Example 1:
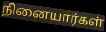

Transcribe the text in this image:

நினையார்கள்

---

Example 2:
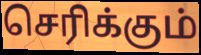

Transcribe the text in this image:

செரிக்கும்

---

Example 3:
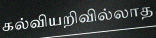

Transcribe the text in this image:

கல்வியறிவில்லாத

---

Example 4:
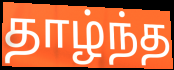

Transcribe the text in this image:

தாழ்ந்த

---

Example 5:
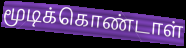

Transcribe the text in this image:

மூடிக்கொண்டாள்